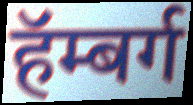
हॅम्बर्ग